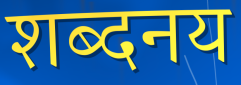
शब्दनय